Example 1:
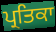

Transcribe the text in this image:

ਪ੍ਰਤਿਕਾ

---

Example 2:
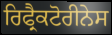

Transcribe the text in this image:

ਰਿਫ੍ਰੈਕਟੋਰੀਨੇਸ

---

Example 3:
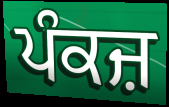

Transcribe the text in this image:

ਪੰਕਜ਼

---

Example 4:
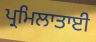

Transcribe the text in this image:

ਪ੍ਰਮਿਲਾਤਾਈ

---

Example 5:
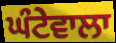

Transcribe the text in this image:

ਘੰਟੇਵਾਲਾ